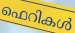
ഫെറികൾ